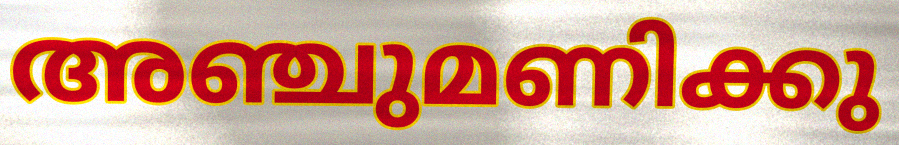
അഞ്ചുമണിക്കു